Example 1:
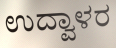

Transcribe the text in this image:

ಉದ್ವಾಳರ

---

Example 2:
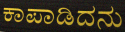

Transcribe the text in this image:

ಕಾಪಾಡಿದನು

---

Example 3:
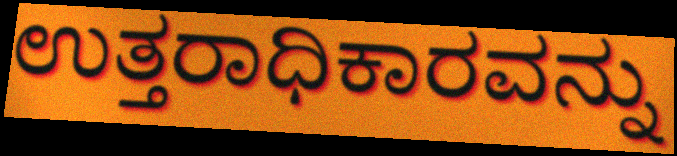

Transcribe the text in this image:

ಉತ್ತರಾಧಿಕಾರವನ್ನು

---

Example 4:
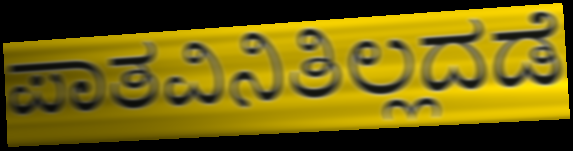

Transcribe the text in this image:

ಪಾತವಿನಿತಿಲ್ಲದಡೆ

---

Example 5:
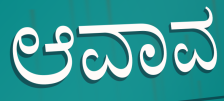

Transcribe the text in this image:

ಆವಾವ